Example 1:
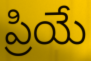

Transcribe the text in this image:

ప్రియే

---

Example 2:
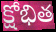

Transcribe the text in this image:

క్షోభిత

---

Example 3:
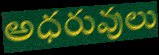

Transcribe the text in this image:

అధరువులు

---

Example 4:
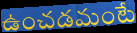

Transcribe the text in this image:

ఉంచడమంటే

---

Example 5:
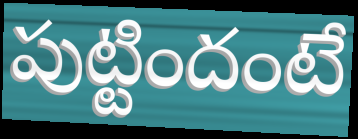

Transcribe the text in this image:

పుట్టిందంటే